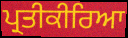
ਪ੍ਰਤੀਕੀਰਿਆ